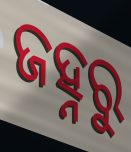
ଜହ୍ନରୁ